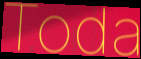
Toda